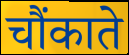
चौंकाते